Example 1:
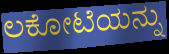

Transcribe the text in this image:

ಲಕೋಟೆಯನ್ನು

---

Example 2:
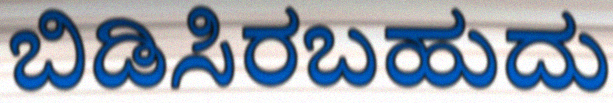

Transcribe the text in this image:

ಬಿಡಿಸಿರಬಹುದು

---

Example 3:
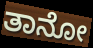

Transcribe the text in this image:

ತಾನೋ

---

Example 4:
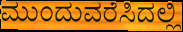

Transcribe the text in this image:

ಮುಂದುವರೆಸಿದಲ್ಲಿ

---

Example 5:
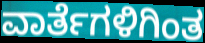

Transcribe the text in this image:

ವಾರ್ತೆಗಳಿಗಿಂತ